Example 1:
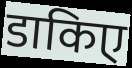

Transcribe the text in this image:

डाकिए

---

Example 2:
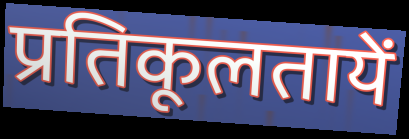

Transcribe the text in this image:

प्रतिकूलतायें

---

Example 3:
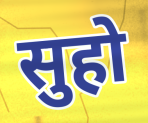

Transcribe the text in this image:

सुहो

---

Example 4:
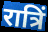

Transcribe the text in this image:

रात्रिं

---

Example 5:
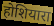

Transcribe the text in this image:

होशियारा